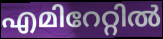
എമിറേറ്റിൽ